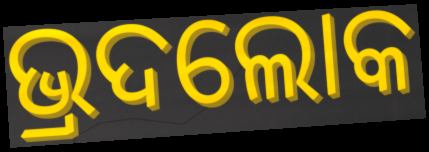
ଭ୍ରଦଲୋକ